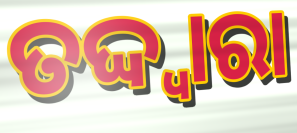
ତଦ୍ଦ୍ଵାରା